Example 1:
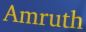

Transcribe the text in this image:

Amruth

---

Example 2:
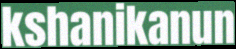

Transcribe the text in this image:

kshanikanun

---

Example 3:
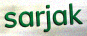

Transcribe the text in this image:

sarjak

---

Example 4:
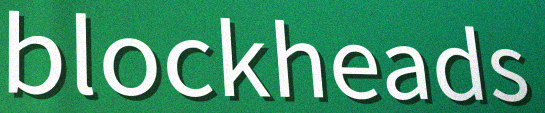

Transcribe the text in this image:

blockheads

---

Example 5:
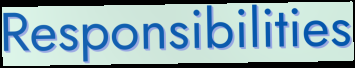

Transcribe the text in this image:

Responsibilities